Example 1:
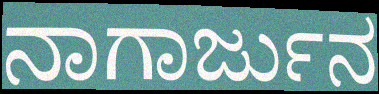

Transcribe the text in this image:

ನಾಗಾರ್ಜುನ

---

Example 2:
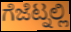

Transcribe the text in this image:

ಗೆಜೆಟ್ನಲ್ಲಿ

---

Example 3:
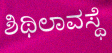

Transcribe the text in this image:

ಶಿಥಿಲಾವಸ್ಥೆ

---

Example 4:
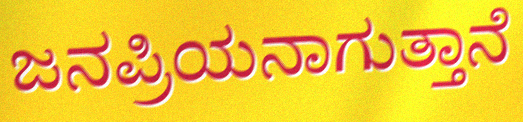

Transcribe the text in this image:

ಜನಪ್ರಿಯನಾಗುತ್ತಾನೆ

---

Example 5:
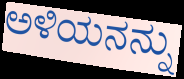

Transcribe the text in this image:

ಅಳಿಯನನ್ನು